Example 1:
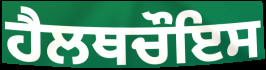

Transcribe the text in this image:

ਹੈਲਥਚੌਇਸ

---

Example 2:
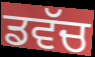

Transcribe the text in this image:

ਡਵੱਚ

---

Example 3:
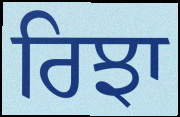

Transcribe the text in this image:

ਰਿਝਾ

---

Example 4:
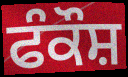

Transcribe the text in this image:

ਫੰਕੌਸ਼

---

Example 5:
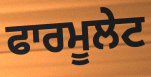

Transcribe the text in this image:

ਫਾਰਮੂਲੇਟ